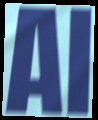
AI